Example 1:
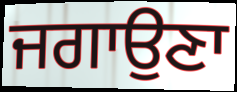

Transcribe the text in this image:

ਜਗਾਉਣਾ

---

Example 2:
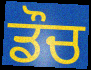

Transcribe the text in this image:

ਡੌਚ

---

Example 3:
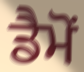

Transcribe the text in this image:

ਡੈਮੋਂ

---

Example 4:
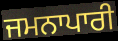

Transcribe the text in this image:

ਜਮਨਾਪਾਰੀ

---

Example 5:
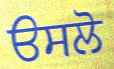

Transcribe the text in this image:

ੳਸਲੋ